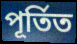
পূৰ্তিত